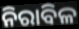
ନିରାବିଳ